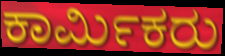
ಕಾರ್ಮಿಕರು